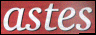
astes